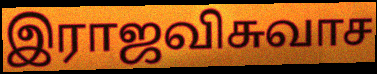
இராஜவிசுவாச